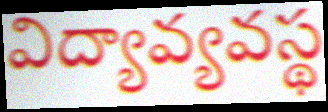
విద్యావ్యవస్థ